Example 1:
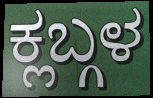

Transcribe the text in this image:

ಕ್ಲಬ್ಗಳ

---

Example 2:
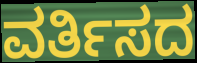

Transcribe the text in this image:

ವರ್ತಿಸದ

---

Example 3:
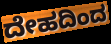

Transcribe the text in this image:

ದೇಹದಿಂದ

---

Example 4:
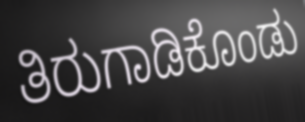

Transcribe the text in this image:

ತಿರುಗಾಡಿಕೊಂಡು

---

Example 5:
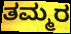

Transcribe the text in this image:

ತಮ್ಮರ